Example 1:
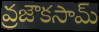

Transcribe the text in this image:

వ్రజౌకసామ్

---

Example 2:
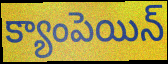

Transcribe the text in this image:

క్యాంపెయిన్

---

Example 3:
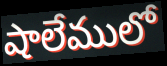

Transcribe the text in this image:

షాలేములో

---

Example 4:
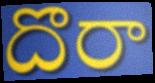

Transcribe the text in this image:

దొరా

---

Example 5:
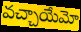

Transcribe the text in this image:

వచ్చాయేమో